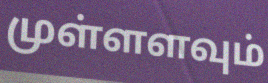
முள்ளளவும்